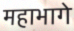
महाभागे